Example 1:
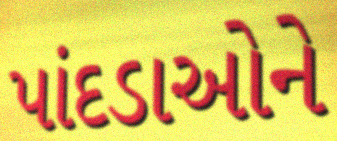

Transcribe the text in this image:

પાંદડાઓને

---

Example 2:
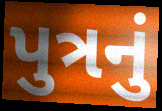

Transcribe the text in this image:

પુત્રનું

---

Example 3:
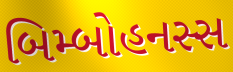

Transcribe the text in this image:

બિમ્બોહનસ્સ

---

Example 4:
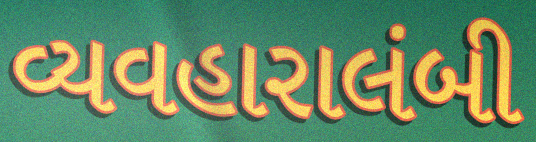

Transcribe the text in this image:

વ્યવહારાલંબી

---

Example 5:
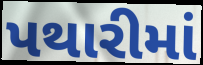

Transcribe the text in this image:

પથારીમાં